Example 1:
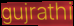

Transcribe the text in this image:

gujrathi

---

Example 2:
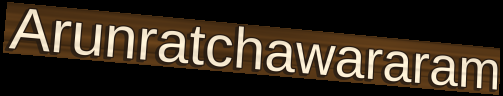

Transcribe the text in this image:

Arunratchawararam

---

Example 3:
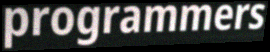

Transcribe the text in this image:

programmers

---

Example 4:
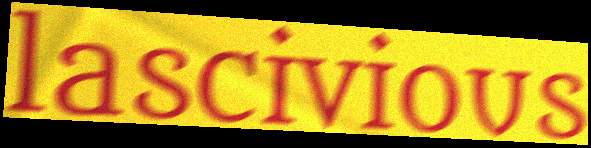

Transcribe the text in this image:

lascivious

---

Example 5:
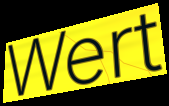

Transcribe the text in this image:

Wert